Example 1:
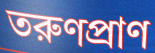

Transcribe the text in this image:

তরুণপ্রাণ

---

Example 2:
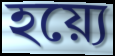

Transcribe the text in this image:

হয়্যে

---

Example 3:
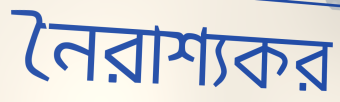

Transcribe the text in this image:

নৈরাশ্যকর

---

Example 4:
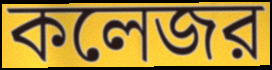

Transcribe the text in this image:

কলেজর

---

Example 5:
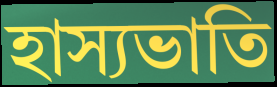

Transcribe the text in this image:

হাস্যভাতি